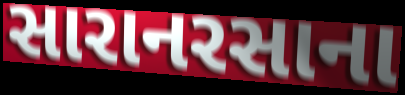
સારાનરસાના